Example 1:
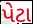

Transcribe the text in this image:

પેટા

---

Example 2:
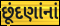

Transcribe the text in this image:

છૂંદણાંનાં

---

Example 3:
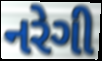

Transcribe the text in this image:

નરેગી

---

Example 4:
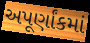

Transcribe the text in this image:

અપૂર્ણાંકમાં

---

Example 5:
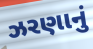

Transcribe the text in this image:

ઝરણાનું